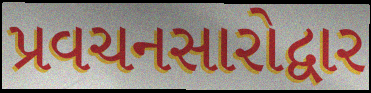
પ્રવચનસારોદ્વાર